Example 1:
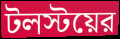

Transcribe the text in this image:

টলস্টয়ের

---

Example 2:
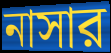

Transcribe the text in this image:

নাসার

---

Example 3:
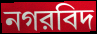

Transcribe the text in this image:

নগরবিদ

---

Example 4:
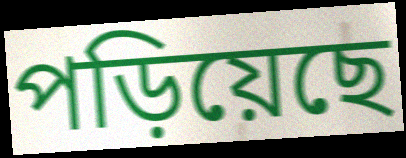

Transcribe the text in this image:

পড়িয়েছে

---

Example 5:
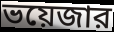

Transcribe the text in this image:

ভয়েজার